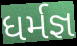
ધર્મજ્ઞ